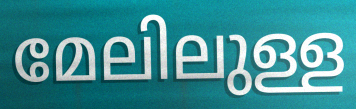
മേലിലുള്ള